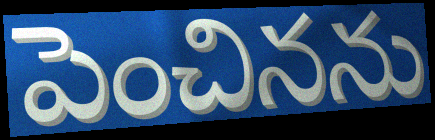
పెంచినను